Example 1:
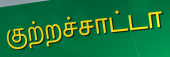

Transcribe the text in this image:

குற்றச்சாட்டா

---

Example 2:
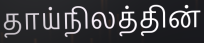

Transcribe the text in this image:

தாய்நிலத்தின்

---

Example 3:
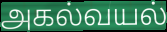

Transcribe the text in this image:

அகல்வயல்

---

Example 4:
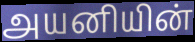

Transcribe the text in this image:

அயனியின்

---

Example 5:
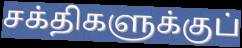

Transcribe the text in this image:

சக்திகளுக்குப்